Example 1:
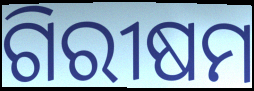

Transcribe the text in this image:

ଗିରୀଷମ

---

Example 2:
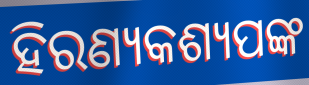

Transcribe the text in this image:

ହିରଣ୍ୟକଶ୍ୟପଙ୍କ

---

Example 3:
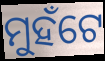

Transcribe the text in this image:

ମୁହଁଟେ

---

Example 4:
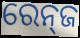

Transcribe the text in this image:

ରେନ୍‍ଜ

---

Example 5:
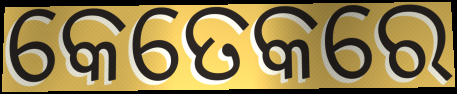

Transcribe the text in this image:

କେତେକରେ